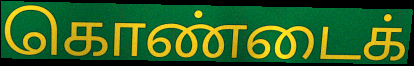
கொண்டைக்